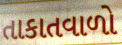
તાકાતવાળો